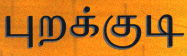
புறக்குடி